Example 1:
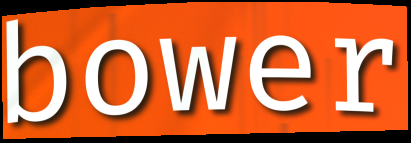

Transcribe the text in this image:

bower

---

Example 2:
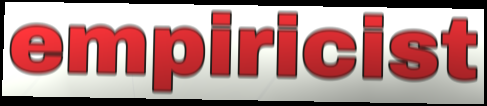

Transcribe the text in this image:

empiricist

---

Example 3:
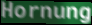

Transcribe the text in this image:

Hornung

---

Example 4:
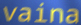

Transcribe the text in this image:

vaina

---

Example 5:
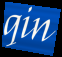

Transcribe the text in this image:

qin